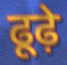
ढूढ़े